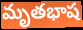
మృతభాష